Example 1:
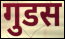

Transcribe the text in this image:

गुडस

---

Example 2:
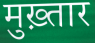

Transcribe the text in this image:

मुख़्तार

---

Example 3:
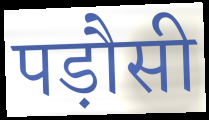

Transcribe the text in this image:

पड़ौसी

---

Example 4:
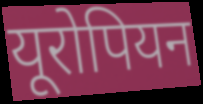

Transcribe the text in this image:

यूरोपियन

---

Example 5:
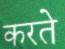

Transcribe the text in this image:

करते